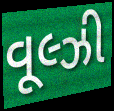
વૂલ્ઝી